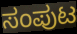
ಸಂಪುಟ